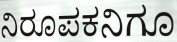
ನಿರೂಪಕನಿಗೂ